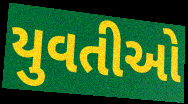
યુવતીઓ